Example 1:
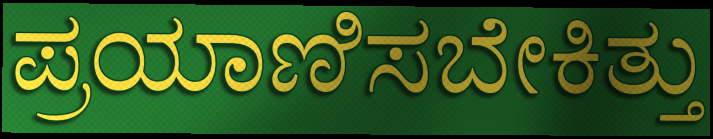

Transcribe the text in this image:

ಪ್ರಯಾಣಿಸಬೇಕಿತ್ತು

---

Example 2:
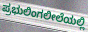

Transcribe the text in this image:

ಪ್ರಭುಲಿಂಗಲೀಲೆಯಲ್ಲಿ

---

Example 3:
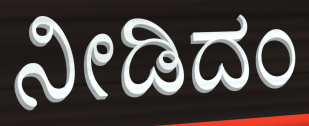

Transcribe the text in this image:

ನೀಡಿದಂ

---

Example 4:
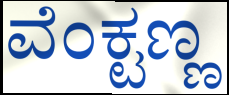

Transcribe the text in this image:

ವೆಂಕ್ಟಣ್ಣ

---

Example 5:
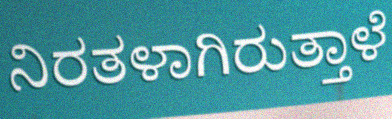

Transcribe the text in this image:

ನಿರತಳಾಗಿರುತ್ತಾಳೆ